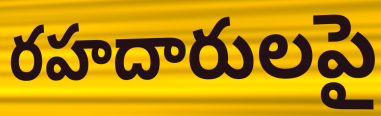
రహదారులపై